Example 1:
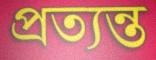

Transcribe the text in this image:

প্রত্যন্ত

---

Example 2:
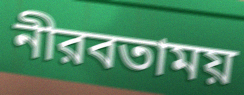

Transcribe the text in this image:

নীরবতাময়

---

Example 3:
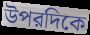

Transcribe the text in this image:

উপরদিকে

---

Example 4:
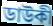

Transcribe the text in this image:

ডাউকী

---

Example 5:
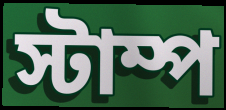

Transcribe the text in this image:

স্টাম্প